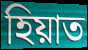
হিয়াত